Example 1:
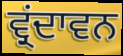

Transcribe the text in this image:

ਵ੍ਰਂਦਾਵਨ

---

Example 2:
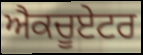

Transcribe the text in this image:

ਐਕਚੂਏਟਰ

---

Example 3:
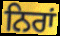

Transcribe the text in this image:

ਨਿਰਾਂ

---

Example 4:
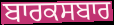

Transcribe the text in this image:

ਬਾਰਕਸਬਾਰ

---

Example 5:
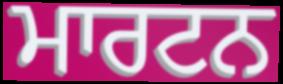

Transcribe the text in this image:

ਮਾਰਟਨ